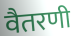
वैतरणी